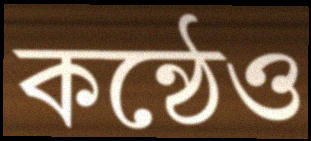
কন্ঠেও